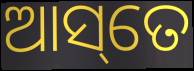
ଆସ୍‌ତେ